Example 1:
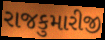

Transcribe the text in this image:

રાજકુમારીજી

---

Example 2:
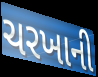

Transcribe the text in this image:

ચરખાની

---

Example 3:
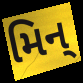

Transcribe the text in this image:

મિન્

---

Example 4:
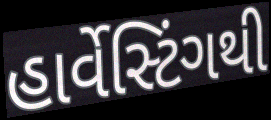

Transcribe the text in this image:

હાર્વેસ્ટિંગથી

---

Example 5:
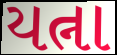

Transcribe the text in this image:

યત્ના